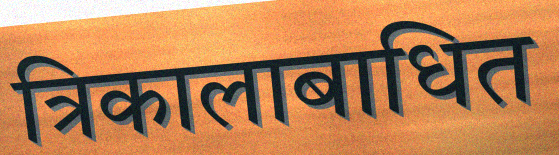
त्रिकालाबाधित